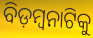
ବିଡ଼ମ୍ବନାଟିକୁ